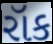
રૉક